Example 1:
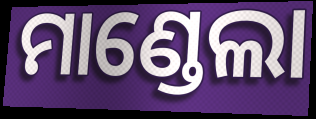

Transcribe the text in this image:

ମାଣ୍ଡେଲା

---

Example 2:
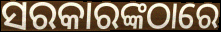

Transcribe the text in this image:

ସରକାରଙ୍କଠାରେ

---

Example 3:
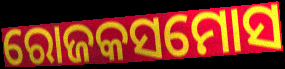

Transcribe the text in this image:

ରୋଜକସମୋସ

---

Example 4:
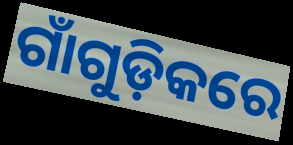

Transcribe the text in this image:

ଗାଁଗୁଡ଼ିକରେ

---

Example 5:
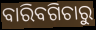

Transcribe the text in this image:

ବାରିବଗିଚାରୁ